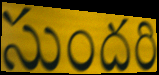
సుందరి